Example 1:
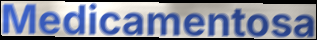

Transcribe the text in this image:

Medicamentosa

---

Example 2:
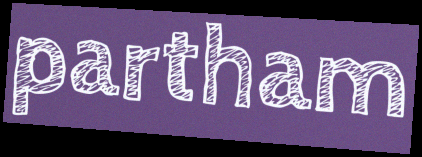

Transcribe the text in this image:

partham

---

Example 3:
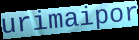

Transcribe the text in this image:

urimaipor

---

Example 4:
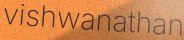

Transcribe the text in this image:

vishwanathan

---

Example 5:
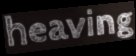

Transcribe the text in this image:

heaving